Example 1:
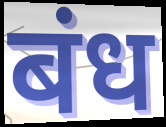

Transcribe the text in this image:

बंध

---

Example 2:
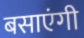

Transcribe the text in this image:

बसाएंगी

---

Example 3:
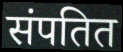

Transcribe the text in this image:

संपतित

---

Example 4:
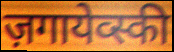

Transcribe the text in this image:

ज़गायेव्स्की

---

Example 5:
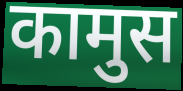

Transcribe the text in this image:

कामुस